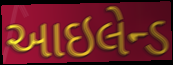
આઇલેન્ડ